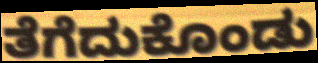
ತೆಗೆದುಕೊಂಡು